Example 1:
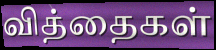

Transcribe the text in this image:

வித்தைகள்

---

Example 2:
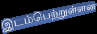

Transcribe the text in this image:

இடம்பெற்றுள்ளன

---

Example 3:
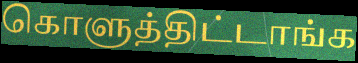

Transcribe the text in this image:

கொளுத்திட்டாங்க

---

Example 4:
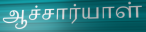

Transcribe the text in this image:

ஆச்சார்யாள்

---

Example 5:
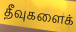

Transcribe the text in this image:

தீவுகளைக்